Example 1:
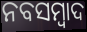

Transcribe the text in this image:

ନବସମ୍ବାଦ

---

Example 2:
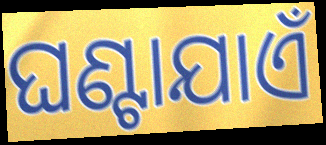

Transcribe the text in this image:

ଘଣ୍ଟାଯାଏଁ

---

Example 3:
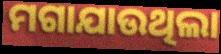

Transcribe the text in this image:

ମଗାଯାଉଥିଲା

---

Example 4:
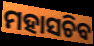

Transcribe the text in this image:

ମହାସଚିବ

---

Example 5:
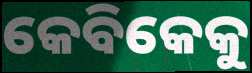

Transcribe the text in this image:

କେବିକେକୁ